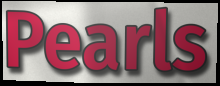
Pearls